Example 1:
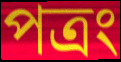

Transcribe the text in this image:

পত্রং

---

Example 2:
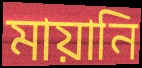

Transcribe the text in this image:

মায়ানি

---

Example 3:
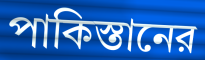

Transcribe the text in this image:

পাকিস্তানের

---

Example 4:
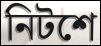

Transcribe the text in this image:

নিটশে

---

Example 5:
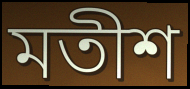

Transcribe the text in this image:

মতীশ